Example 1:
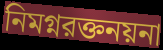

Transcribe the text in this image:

নিমগ্নরক্তনয়না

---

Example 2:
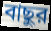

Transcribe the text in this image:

বাছুর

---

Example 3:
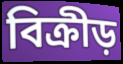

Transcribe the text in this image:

বিক্রীড়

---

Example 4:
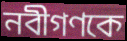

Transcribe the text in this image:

নবীগণকে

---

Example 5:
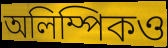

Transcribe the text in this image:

অলিম্পিকও